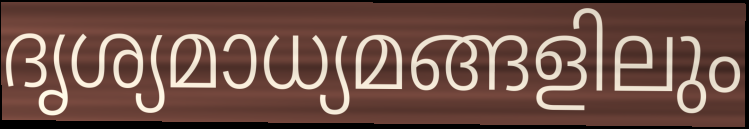
ദൃശ്യമാധ്യമങ്ങളിലും